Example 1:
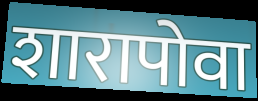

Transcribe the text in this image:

शारापोवा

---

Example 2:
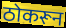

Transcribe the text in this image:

ठोकरून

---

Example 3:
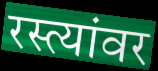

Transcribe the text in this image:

रस्त्यांवर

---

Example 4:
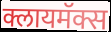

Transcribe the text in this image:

क्लायमॅक्स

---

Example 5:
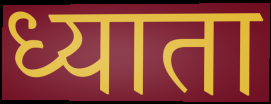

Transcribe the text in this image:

ध्याता